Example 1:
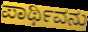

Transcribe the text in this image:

ಪಾರ್ಥಿವನು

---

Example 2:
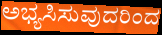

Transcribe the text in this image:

ಅಭ್ಯಸಿಸುವುದರಿಂದ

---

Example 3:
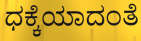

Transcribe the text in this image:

ಧಕ್ಕೆಯಾದಂತೆ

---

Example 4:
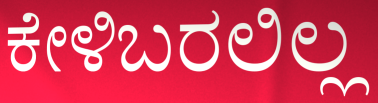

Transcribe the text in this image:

ಕೇಳಿಬರಲಿಲ್ಲ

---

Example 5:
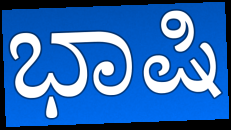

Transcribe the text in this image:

ಭಾಷಿ